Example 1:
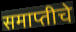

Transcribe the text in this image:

समाप्तीचे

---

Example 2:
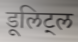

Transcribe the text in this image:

डूलिट्ल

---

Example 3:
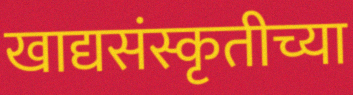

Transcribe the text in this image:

खाद्यसंस्कृतीच्या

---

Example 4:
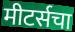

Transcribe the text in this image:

मीटर्सचा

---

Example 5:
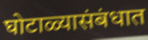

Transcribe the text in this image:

घोटाळ्यासंबंधात